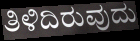
ತಿಳಿದಿರುವುದು